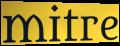
mitre